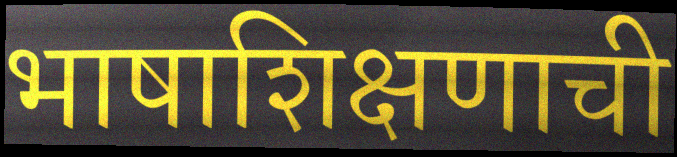
भाषाशिक्षणाची